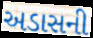
અડાસની